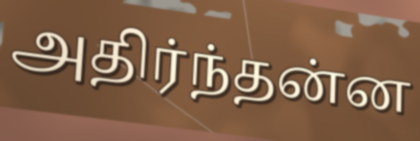
அதிர்ந்தன்ன